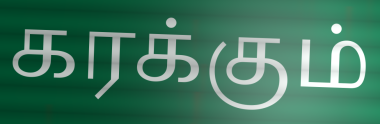
கரக்கும்